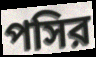
পসির